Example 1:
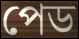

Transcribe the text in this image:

পেড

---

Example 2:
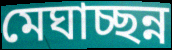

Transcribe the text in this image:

মেঘাচ্ছন্ন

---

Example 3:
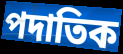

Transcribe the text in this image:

পদাতিক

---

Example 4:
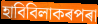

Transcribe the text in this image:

হাবিবিলাকৰপৰা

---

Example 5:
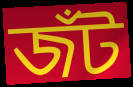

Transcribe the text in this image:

জঁট